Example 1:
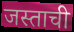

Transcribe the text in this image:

जस्ताची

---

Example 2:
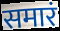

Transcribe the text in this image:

समारं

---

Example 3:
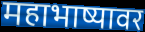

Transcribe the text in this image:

महाभाष्यावर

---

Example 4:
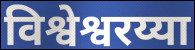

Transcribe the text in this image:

विश्वेश्वरय्या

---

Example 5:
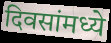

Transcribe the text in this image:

दिवसांमध्ये